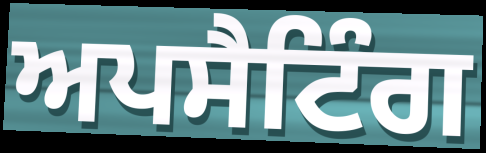
ਅਪਸੈਟਿੰਗ